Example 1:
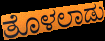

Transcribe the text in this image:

ತೊಳಲಾಡು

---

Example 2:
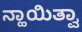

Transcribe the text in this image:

ನ್ಹಾಯಿತ್ವಾ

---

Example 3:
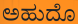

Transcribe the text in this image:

ಅಹುದೊ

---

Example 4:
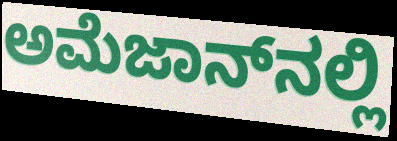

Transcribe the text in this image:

ಅಮೆಜಾನ್‌ನಲ್ಲಿ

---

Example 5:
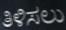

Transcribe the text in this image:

ತಿಳಿಸಲು